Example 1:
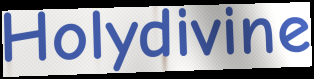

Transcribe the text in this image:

Holydivine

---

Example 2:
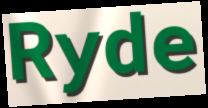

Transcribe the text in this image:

Ryde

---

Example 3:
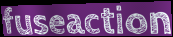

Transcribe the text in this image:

fuseaction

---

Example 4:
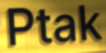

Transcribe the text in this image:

Ptak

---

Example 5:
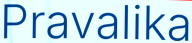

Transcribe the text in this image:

Pravalika